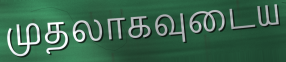
முதலாகவுடைய